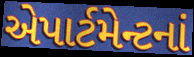
એપાર્ટમેન્ટનાં